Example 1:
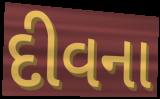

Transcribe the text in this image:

દીવના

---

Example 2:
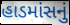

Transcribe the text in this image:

હાડમાંસનું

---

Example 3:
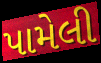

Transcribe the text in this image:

પામેલી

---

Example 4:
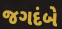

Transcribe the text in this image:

જગદંબે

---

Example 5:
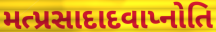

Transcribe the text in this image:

મત્પ્રસાદાદવાપ્નોતિ